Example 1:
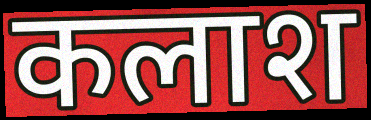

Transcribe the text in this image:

कलाश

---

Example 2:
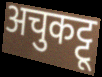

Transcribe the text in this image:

अचुकट्टू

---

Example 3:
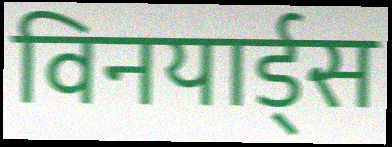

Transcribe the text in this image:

विनयार्ड्स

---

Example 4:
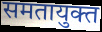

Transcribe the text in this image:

समतायुक्त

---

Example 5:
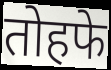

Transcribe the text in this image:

तोहफे